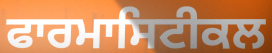
ਫਾਰਮਾਸਿਟੀਕਲ